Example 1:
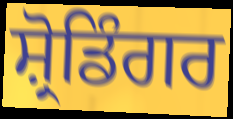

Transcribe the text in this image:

ਸ਼੍ਰੋਡਿੰਗਰ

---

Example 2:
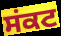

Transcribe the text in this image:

ਸਂਕਟ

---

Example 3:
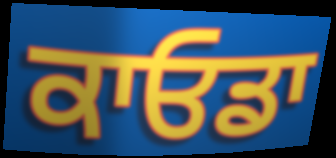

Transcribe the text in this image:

ਕਾਓਡਾ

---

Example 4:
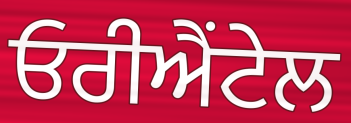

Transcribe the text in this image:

ਓਰੀਐਂਟੇਲ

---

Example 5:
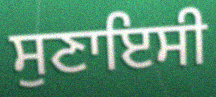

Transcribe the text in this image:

ਸੁਣਾਇਸੀ